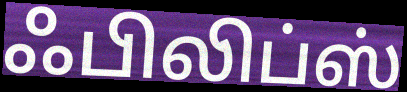
ஃபிலிப்ஸ்